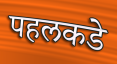
पहलकडे